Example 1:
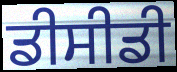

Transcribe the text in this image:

ਡੀਸੀਡੀ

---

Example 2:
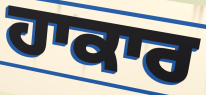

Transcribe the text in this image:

ਹਾਕਾਰ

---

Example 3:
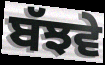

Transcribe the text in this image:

ਬੱਝਵੇ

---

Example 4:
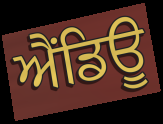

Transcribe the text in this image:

ਐਂਡਿਊ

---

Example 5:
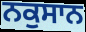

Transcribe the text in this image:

ਨਕੁਸਾਨ